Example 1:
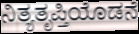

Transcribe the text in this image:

ನಿತ್ಯತೃಪ್ತಿಯೊಡನೆ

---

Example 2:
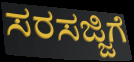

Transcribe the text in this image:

ಸರಸಜ್ಜಿಗೆ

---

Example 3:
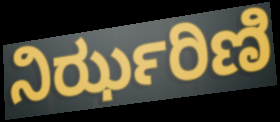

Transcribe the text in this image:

ನಿರ್ಝರಿಣಿ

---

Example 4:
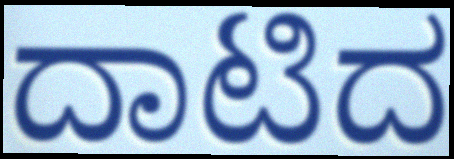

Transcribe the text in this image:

ದಾಟಿದ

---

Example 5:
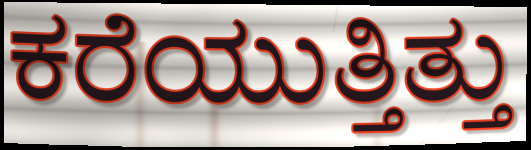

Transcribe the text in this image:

ಕರೆಯುತ್ತಿತ್ತು